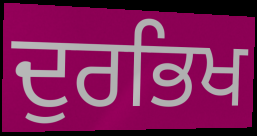
ਦੁਰਭਿਖ